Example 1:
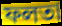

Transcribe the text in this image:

ফলতা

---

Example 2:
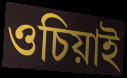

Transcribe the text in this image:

ওচিয়াই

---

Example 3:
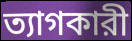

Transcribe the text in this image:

ত্যাগকারী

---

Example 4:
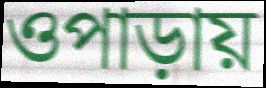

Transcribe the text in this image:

ওপাড়ায়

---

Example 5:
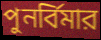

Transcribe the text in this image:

পুনর্বিমার